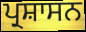
ਪ੍ਰਸ਼ਾਸਨ